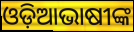
ଓଡ଼ିଆଭାଷୀଙ୍କ